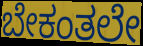
ಬೇಕಂತಲೇ